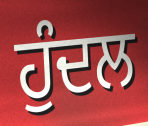
ਹੁੰਦਲ